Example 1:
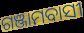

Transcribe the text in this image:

ଗଞ୍ଜାମବାସୀ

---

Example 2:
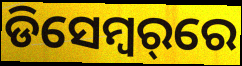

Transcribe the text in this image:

ଡିସେମ୍ବର୍‌ରେ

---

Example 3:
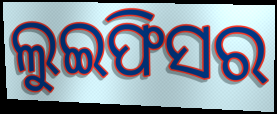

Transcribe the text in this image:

ଲୁଇଫିସର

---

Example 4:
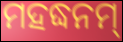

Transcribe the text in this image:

ମହଦ୍ଧନମ୍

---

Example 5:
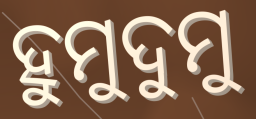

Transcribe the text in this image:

ହୁମୁଦୁମୁ